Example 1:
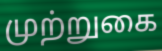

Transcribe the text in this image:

முற்றுகை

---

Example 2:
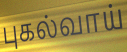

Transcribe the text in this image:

புகல்வாய்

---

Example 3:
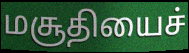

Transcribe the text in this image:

மசூதியைச்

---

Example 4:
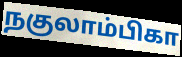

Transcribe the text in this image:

நகுலாம்பிகா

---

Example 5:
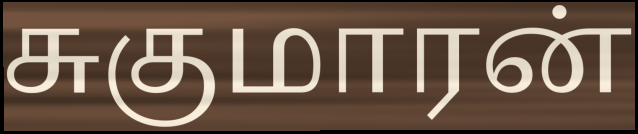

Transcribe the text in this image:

சுகுமாரன்